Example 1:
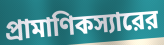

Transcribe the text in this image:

প্রামাণিকস্যারের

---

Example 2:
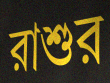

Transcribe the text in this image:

রাশুর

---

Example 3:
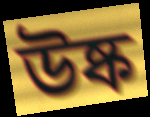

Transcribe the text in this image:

উষ্ক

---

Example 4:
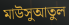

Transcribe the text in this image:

মাউসুআতুল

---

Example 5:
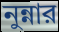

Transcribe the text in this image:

নুন্নার